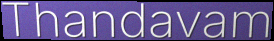
Thandavam